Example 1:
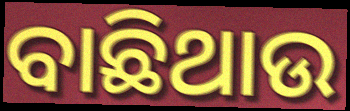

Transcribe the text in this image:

ବାଛିଥାଉ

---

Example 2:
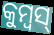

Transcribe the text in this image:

କୁମ୍ବସ୍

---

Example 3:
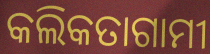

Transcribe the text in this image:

କଲିକତାଗାମୀ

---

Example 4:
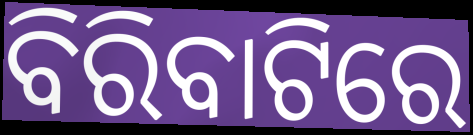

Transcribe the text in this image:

ବିରିବାଟିରେ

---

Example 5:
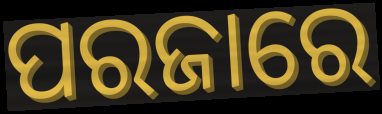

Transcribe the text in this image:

ପରଜାରେ